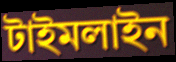
টাইমলাইন